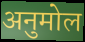
अनुमोल